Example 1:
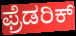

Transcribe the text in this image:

ಫ್ರೆಡರಿಕ್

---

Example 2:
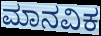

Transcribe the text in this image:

ಮಾನವಿಕ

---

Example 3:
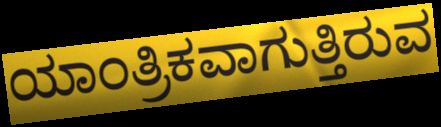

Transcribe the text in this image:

ಯಾಂತ್ರಿಕವಾಗುತ್ತಿರುವ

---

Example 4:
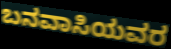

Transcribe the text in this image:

ಬನವಾಸಿಯವರ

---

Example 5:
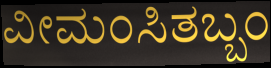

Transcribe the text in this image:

ವೀಮಂಸಿತಬ್ಬಂ